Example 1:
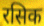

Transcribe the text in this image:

रसिक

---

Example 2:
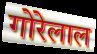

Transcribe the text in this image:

गोरेलाल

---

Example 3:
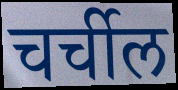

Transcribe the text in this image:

चर्चील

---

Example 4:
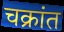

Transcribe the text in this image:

चक्रांत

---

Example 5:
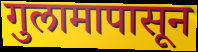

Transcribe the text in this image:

गुलामापासून